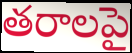
తరాలపై